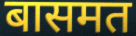
बासमत